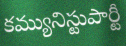
కమ్యునిస్టుపార్టీ